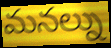
మనల్ను